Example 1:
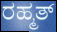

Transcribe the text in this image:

ರಹ್ಮತ್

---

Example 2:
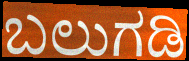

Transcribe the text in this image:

ಬಲುಗಡಿ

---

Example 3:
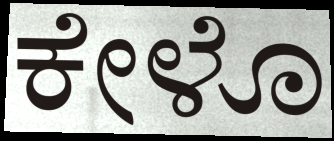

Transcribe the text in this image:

ಕೇಳೊ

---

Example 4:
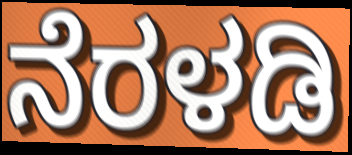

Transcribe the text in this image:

ನೆರಳಡಿ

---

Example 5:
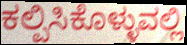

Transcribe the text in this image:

ಕಲ್ಪಿಸಿಕೊಳ್ಳುವಲ್ಲಿ